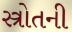
સ્ત્રોતની